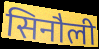
सिनौली